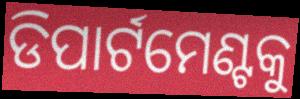
ଡିପାର୍ଟମେଣ୍ଟକୁ